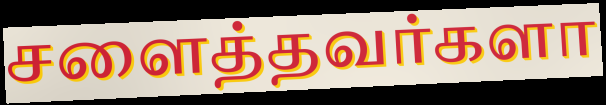
சளைத்தவர்களா